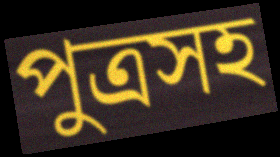
পুত্রসহ